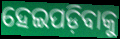
ହେଇପଡ଼ିବାକୁ